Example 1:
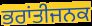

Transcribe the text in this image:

ਭਰਾਂਤੀਜਨਕ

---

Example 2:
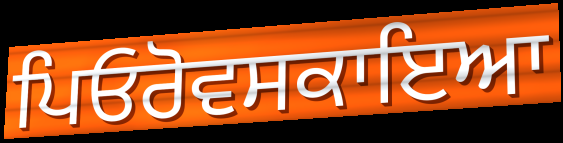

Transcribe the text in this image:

ਪਿਓਰੋਵਸਕਾਇਆ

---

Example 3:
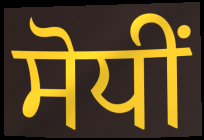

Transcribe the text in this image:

ਸੋਧੀਂ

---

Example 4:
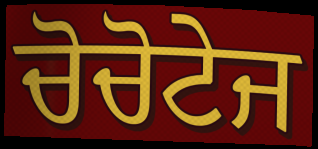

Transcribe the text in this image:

ਚੋਚੋਟੇਜ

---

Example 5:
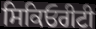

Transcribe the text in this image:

ਸਿਕਿਓਰੀਟੀ